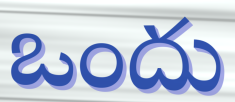
ఒందు